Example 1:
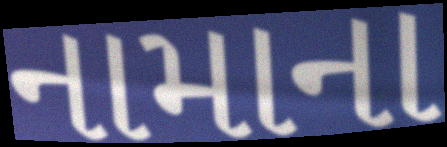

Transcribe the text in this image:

નામાના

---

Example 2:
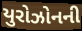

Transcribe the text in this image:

યુરોઝોનની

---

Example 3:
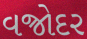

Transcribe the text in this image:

વજ્રોદર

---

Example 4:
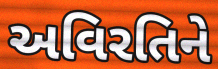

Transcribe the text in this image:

અવિરતિને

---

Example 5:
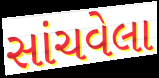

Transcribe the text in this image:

સાંચવેલા